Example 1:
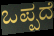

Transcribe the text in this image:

ಒಪ್ಪದೆ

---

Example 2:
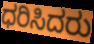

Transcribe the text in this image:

ಧರಿಸಿದರು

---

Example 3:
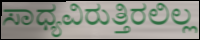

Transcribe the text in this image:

ಸಾಧ್ಯವಿರುತ್ತಿರಲಿಲ್ಲ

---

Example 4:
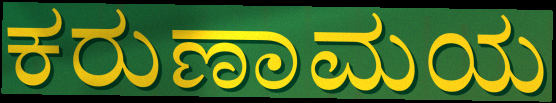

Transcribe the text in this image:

ಕರುಣಾಮಯ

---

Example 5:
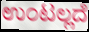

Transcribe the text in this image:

ಉಂಟಲ್ಲದೆ